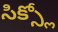
సిక్స్లో